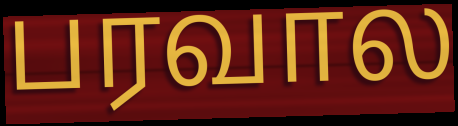
பரவால